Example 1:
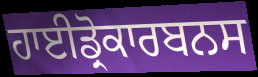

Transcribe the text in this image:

ਹਾਈਡ੍ਰੋਕਾਰਬਨਸ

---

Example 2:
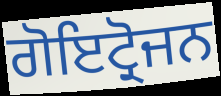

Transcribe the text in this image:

ਗੋਇਟ੍ਰੋਜਨ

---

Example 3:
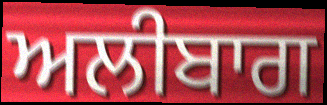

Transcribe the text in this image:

ਅਲੀਬਾਗ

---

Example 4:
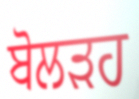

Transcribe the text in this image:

ਬੋਲੜਹ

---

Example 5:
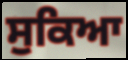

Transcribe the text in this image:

ਸੁਕਿਆ